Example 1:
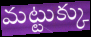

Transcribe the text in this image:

మట్టుక్కు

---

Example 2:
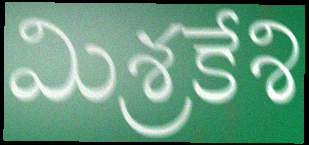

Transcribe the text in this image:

మిశ్రకేశి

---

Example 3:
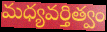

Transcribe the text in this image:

మధ్యవర్తిత్వం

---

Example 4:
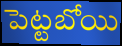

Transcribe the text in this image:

పెట్టబోయి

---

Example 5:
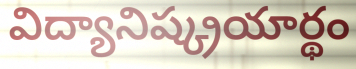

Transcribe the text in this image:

విద్యానిష్క్రయార్థం